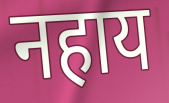
नहाय